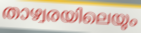
താഴ്വരയിലെയും